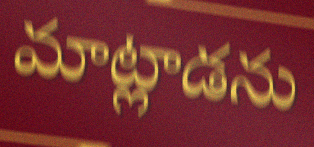
మాట్లాడను